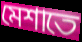
মেশাতে